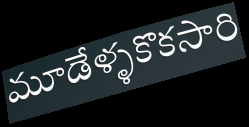
మూడేళ్ళకొకసారి